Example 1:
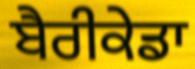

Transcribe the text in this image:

ਬੈਰੀਕੇਡਾ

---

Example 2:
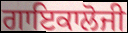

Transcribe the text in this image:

ਗਾਇਕਾਲੋਜੀ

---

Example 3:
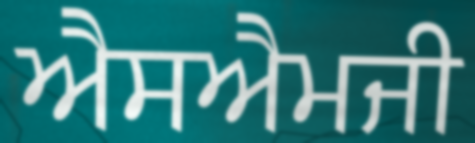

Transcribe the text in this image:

ਐਸਐਮਜੀ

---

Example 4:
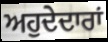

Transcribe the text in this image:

ਅਹੁਦੇਦਾਰਾਂ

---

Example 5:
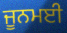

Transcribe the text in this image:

ਜੂਨਮਈ